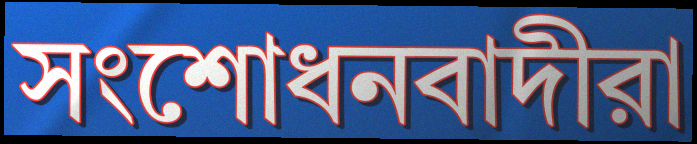
সংশোধনবাদীরা